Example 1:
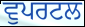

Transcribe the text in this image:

ਵੁਪਰਟਲ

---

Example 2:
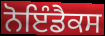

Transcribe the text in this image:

ਨੋਇੰਡੈਕਸ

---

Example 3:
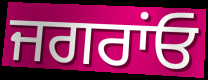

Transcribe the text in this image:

ਜਗਰਾਂਓ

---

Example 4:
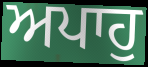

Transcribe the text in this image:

ਅਪਾਹੁ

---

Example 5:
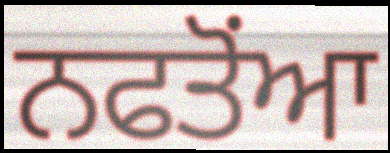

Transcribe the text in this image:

ਨਫਤੋਂਆ